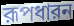
রূপধারন